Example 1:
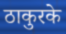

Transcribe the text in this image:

ठाकुरके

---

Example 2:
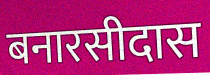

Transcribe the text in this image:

बनारसीदास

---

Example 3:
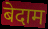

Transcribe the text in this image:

बेदाम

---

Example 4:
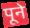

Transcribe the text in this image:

पूने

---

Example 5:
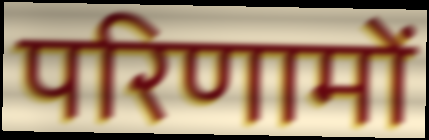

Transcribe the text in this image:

परिणामों